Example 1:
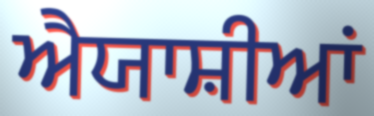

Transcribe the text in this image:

ਐਯਾਸ਼ੀਆਂ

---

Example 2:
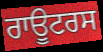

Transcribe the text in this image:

ਰਾਊਟਰਸ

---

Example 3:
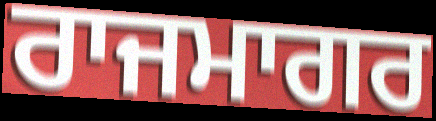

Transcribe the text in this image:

ਰਾਜਮਾਗਰ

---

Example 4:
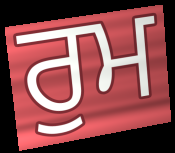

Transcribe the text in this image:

ਰੁਮ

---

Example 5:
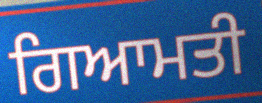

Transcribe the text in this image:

ਗਿਆਮਤੀ